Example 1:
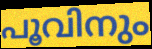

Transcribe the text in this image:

പൂവിനും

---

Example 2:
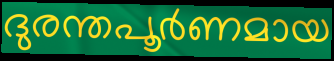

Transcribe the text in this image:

ദുരന്തപൂർണമായ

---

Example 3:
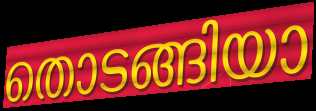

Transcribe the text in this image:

തൊടങ്ങിയാ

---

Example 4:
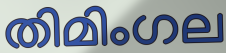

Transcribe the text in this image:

തിമിംഗല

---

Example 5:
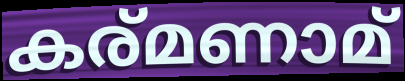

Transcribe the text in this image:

കര്മണാമ്